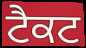
ਟੈਕਟ